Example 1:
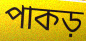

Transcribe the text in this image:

পাকড়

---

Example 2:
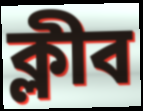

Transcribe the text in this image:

ক্লীব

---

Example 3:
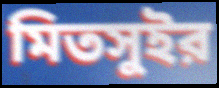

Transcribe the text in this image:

মিতসুইর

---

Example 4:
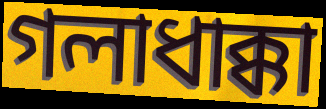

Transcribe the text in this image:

গলাধাক্কা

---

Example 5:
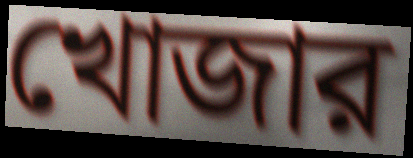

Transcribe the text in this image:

খোজার